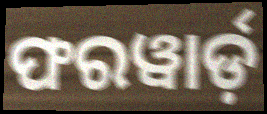
ଫରୱାର୍ଡ଼